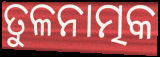
ତୁଳନାତ୍ମକ